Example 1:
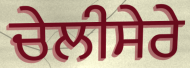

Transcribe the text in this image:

ਚੇਲੀਸੇਰੇ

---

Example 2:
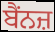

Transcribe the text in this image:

ਬੈਂਨਜ਼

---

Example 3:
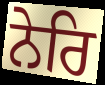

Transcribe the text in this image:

ਨੇਰਿ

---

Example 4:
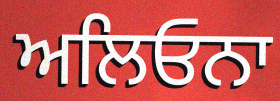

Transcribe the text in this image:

ਅਲਿਓਨਾ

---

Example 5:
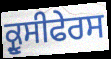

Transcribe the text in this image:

ਕ੍ਰੂਸੀਫੇਰਸ